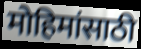
मोहिमांसाठी